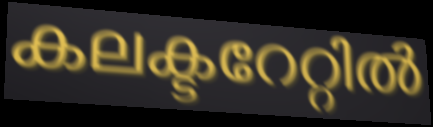
കലക്ടറേറ്റിൽ